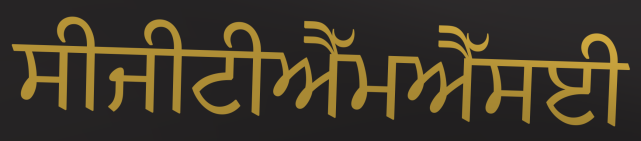
ਸੀਜੀਟੀਐੱਮਐੱਸਈ